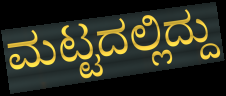
ಮಟ್ಟದಲ್ಲಿದ್ದು